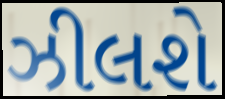
ઝીલશે